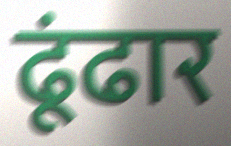
ढूंढार